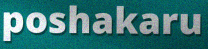
poshakaru